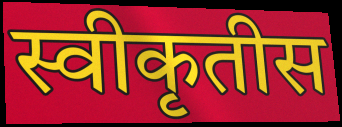
स्वीकृतीस